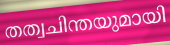
തത്വചിന്തയുമായി